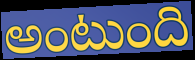
అంటుంది